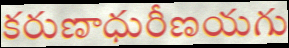
కరుణాధురీణయగు